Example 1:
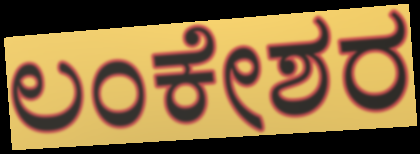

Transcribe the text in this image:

ಲಂಕೇಶರ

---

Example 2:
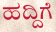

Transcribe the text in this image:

ಹದ್ದಿಗೆ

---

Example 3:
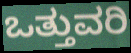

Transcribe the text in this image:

ಒತ್ತುವರಿ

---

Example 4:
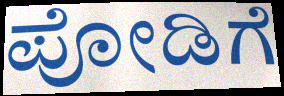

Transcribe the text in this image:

ಪೋಡಿಗೆ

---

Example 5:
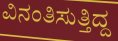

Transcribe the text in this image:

ವಿನಂತಿಸುತ್ತಿದ್ದ